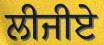
ਲੀਜੀਏ